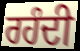
ਰਹੰਦੀ